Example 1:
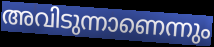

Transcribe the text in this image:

അവിടുന്നാണെന്നും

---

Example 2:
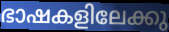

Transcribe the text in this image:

ഭാഷകളിലേക്കു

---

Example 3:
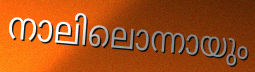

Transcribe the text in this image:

നാലിലൊന്നായും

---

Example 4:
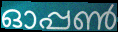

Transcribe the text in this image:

ഓപ്പൺ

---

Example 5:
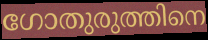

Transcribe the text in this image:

ഗോതുരുത്തിനെ